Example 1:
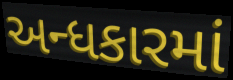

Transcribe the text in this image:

અન્ધકારમાં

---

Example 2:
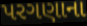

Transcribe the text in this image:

પરગણાના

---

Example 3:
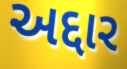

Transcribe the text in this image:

અદ્દાર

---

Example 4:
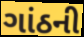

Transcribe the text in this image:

ગાંઠની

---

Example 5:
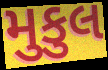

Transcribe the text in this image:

મુકુલ